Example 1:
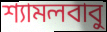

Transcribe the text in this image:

শ্যামলবাবু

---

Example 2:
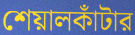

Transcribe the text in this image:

শেয়ালকাঁটার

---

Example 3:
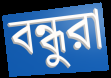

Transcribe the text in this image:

বন্ধুরা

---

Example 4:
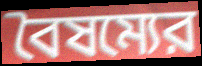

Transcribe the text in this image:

বৈষম্যের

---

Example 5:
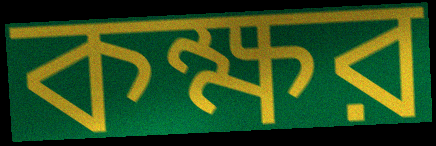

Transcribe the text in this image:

কক্ষর